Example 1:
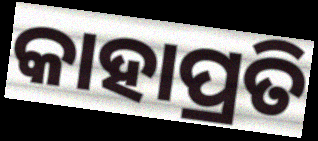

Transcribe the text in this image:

କାହାପ୍ରତି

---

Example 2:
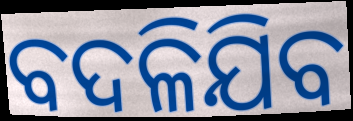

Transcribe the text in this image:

ବଦଳିଯିବ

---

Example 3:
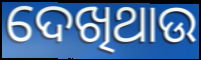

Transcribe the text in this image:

ଦେଖିଥାଉ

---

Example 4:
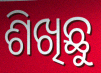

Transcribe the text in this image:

ଶିଖିଛୁ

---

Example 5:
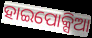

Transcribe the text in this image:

ହାଇପୋକ୍ସିଆ